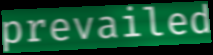
prevailed